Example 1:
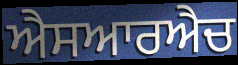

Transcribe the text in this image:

ਐਸਆਰਐਚ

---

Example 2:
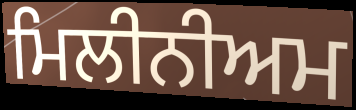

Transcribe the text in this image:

ਮਿਲੀਨੀਅਮ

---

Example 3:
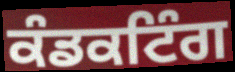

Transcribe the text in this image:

ਕੰਡਕਟਿੰਗ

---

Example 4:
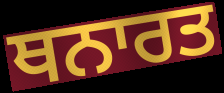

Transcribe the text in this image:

ਥਨਾਰਤ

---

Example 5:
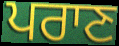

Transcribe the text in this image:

ਪਰਾਣ